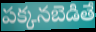
పక్కనబెడితే